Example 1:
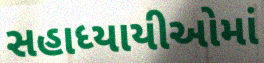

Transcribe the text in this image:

સહાધ્યાયીઓમાં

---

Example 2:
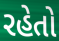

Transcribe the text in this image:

રહેતો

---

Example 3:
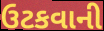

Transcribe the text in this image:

ઉટકવાની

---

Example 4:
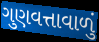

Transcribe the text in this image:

ગુણવત્તાવાળું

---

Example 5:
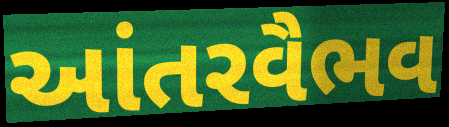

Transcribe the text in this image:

આંતરવૈભવ